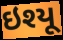
ઇશ્યૂ